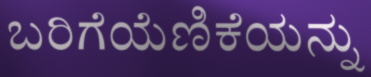
ಬರಿಗೆಯೆಣಿಕೆಯನ್ನು